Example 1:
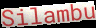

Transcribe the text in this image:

Silambu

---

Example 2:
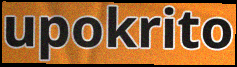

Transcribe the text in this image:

upokrito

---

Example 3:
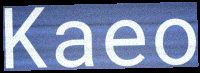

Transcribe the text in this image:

Kaeo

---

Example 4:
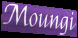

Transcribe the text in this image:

Moungi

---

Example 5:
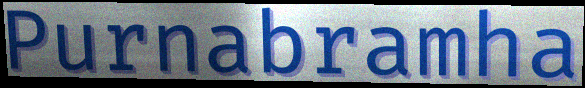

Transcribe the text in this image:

Purnabramha